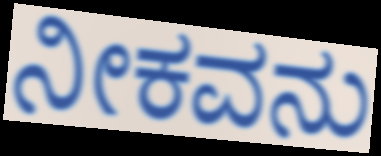
ನೀಕವನು